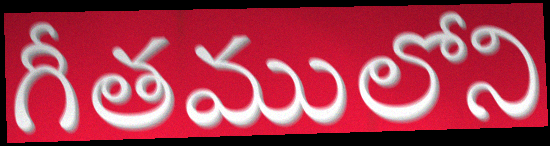
గీతములోని